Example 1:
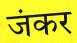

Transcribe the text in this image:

जंकर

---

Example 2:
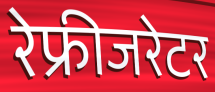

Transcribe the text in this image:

रेफ्रीजरेटर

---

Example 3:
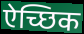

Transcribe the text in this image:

ऐच्छिक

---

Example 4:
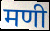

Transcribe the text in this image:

मणी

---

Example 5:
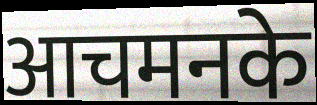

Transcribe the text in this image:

आचमनके